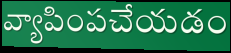
వ్యాపింపచేయడం